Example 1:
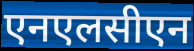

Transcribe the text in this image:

एनएलसीएन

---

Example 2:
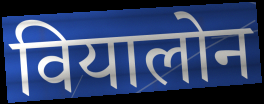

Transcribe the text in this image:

वियालोन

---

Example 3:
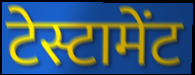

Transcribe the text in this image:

टेस्टामेंट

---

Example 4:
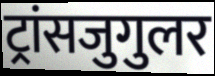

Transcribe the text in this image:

ट्रांसजुगुलर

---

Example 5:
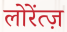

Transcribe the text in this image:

लोरेंत्ज़